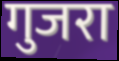
गुजरा